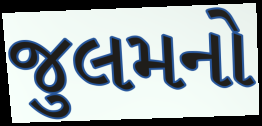
જુલમનો